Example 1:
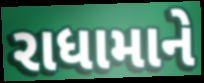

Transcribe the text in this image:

રાધામાને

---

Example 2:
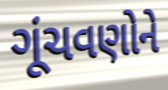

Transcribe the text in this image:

ગૂંચવણોને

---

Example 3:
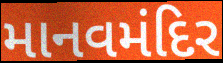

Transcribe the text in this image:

માનવમંદિર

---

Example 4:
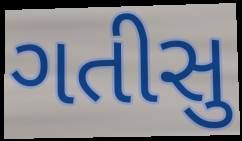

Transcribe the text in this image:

ગતીસુ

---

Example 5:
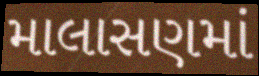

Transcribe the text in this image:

માલાસણમાં